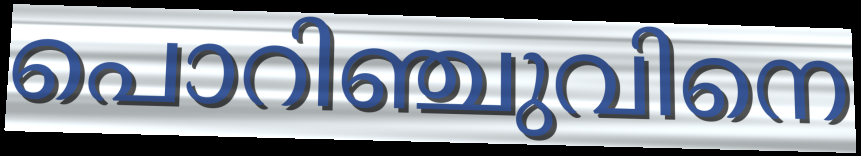
പൊറിഞ്ചുവിനെ